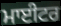
ਮਾਈਟਰ